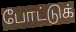
போட்டுக்